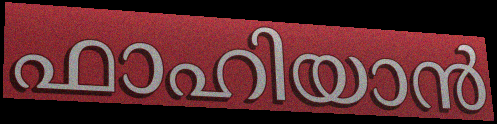
ഫാഹിയാൻ